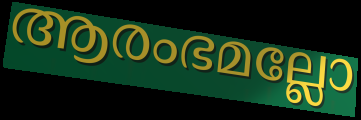
ആരംഭമല്ലോ